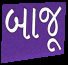
બાજૂ